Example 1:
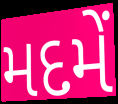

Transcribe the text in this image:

મદમેં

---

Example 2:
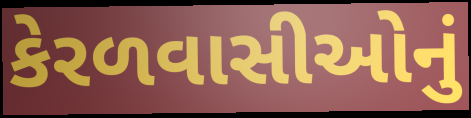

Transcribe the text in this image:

કેરળવાસીઓનું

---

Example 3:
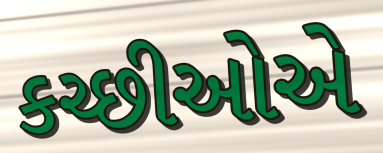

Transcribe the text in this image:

કચ્છીઓએ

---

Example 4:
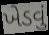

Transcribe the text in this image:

ખેડવું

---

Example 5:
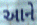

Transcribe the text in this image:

આને